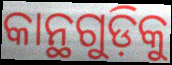
କାନ୍ଥଗୁଡ଼ିକୁ